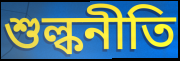
শুল্কনীতি